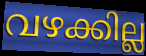
വഴക്കില്ല